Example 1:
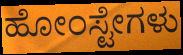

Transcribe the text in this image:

ಹೋಂಸ್ಟೇಗಳು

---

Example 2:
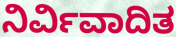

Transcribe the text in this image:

ನಿರ್ವಿವಾದಿತ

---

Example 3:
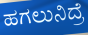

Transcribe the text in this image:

ಹಗಲುನಿದ್ರೆ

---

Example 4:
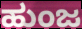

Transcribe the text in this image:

ಹುಂಜ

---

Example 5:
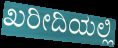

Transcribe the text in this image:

ಖರೀದಿಯಲ್ಲಿ